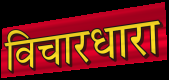
विचारधारा